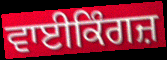
ਵਾਈਕਿੰਗਜ਼